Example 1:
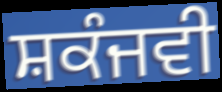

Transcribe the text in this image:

ਸ਼ਕੰਜਵੀ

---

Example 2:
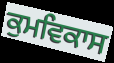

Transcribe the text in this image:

ਕੁਮਵਿਕਾਸ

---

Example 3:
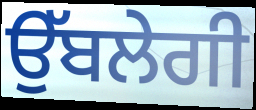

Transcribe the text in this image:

ਉੱਬਲੇਗੀ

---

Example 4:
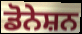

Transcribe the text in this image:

ਡੋਨੇਸ਼ਨ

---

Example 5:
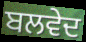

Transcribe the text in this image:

ਬਲਵੇਦ